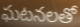
ఘటనలతో